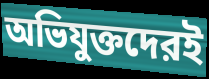
অভিযুক্তদেরই